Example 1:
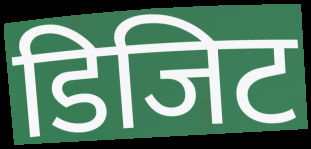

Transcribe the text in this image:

डिजिट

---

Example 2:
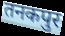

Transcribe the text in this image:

तनकपुर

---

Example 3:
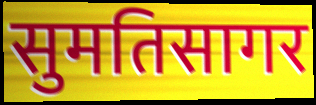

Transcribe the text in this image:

सुमतिसागर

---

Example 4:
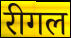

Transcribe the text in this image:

रीगल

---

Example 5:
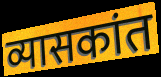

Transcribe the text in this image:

व्यासकांत